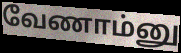
வேணாம்னு